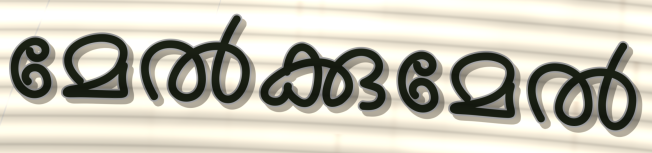
മേൽക്കുമേൽ